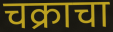
चक्राचा